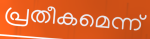
പ്രതീകമെന്ന്